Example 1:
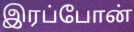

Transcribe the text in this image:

இரப்போன்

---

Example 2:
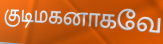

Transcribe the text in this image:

குடிமகனாகவே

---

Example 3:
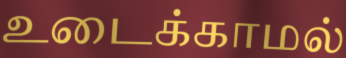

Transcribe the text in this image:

உடைக்காமல்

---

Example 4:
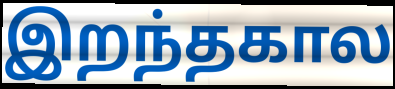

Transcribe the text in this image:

இறந்தகால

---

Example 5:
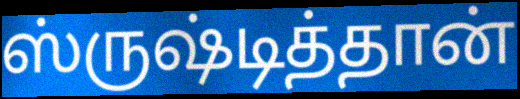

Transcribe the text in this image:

ஸ்ருஷ்டித்தான்